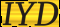
IYD